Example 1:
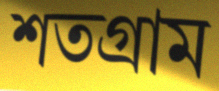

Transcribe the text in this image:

শতগ্রাম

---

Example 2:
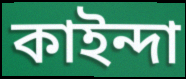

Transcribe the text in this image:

কাইন্দা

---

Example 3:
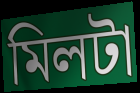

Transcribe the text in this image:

মিলটা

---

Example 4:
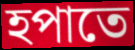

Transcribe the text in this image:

হপাতে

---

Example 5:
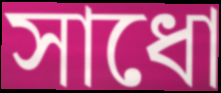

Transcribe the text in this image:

সাধো